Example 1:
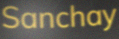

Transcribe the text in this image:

Sanchay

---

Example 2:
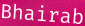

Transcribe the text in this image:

Bhairab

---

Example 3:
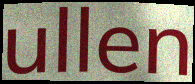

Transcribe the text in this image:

ullen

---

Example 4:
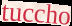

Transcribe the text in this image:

tuccho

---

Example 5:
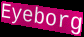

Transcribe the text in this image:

Eyeborg